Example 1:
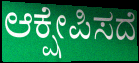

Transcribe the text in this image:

ಆಕ್ಷೇಪಿಸದೆ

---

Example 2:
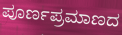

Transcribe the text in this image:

ಪೂರ್ಣಪ್ರಮಾಣದ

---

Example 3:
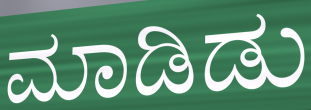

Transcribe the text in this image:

ಮಾಡಿಡು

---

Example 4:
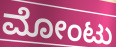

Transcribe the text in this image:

ಮೋಂಟು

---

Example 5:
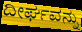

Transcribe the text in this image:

ದೀರ್ಘವನ್ನು